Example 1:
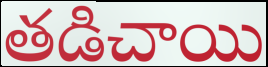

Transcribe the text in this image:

తడిచాయి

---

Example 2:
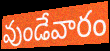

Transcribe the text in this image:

వుండేవారం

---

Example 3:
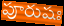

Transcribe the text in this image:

పూరుషః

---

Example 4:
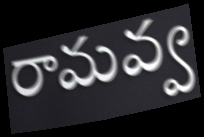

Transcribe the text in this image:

రామవ్వ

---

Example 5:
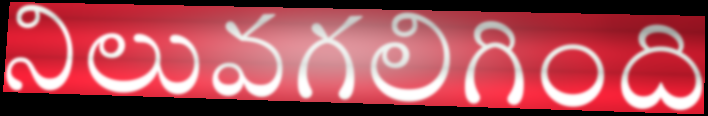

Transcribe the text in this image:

నిలువగలిగింది